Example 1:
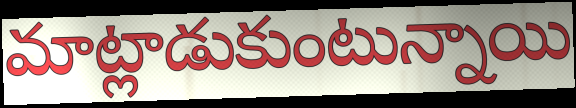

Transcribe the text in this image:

మాట్లాడుకుంటున్నాయి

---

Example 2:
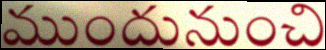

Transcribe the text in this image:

ముందునుంచి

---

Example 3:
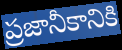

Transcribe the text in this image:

ప్రజానీకానికి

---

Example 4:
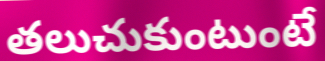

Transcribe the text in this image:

తలుచుకుంటుంటే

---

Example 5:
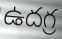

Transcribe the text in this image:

ఉదగ్ర